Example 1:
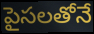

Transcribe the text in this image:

పైసలతోనే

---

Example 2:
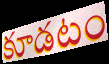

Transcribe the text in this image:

కూడటం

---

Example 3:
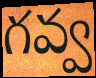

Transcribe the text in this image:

గవ్వ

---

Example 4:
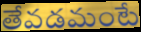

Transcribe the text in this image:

తేవడమంటే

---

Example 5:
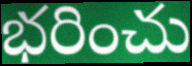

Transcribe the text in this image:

భరించు